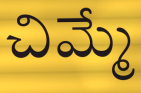
చిమ్మే